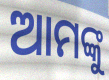
ଆମଙ୍କୁ